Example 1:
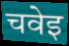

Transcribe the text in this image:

चवेइ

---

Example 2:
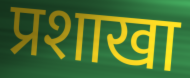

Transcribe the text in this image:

प्रशाखा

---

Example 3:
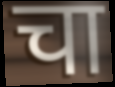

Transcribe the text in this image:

चा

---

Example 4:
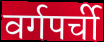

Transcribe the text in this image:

वर्गपर्ची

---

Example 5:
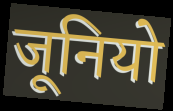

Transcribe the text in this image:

जूनियो